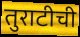
तुराटीची